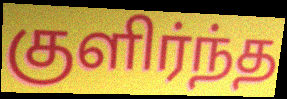
குளிர்ந்த